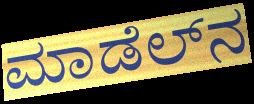
ಮಾಡೆಲ್‌ನ